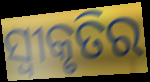
ସ୍ଵୀକୃତିର